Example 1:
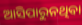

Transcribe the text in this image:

ଆସିପାରୁନଥିବା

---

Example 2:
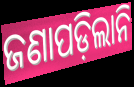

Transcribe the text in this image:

ଜଣାପଡ଼ିଲାନି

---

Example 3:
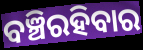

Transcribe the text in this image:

ବଞ୍ଚିରହିବାର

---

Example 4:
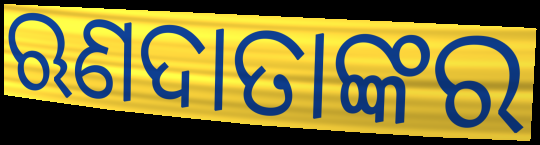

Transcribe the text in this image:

ଋଣଦାତାଙ୍କର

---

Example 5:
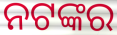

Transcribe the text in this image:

ନଟଙ୍କର